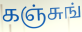
கஞ்சுங்